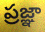
ప్రజ్ఞా